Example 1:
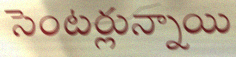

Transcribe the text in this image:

సెంటర్లున్నాయి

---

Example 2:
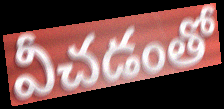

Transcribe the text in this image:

వీచడంతో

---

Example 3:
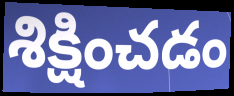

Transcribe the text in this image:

శిక్షించడం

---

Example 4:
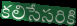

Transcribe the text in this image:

కలిసేసరికి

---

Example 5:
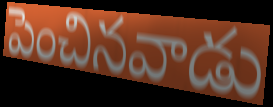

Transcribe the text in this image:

పెంచినవాడు